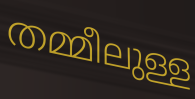
തമ്മീലുള്ള